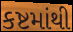
કષ્ટમાંથી